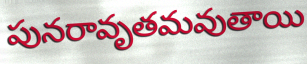
పునరావృతమవుతాయి